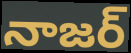
నాజర్